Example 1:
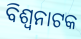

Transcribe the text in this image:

ବିଶ୍ୱନାଟକ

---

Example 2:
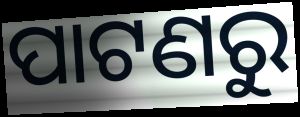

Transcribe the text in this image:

ପାଟଣରୁ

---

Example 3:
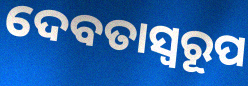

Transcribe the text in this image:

ଦେବତାସ୍ୱରୂପ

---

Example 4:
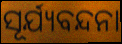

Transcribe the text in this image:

ସୂର୍ଯ୍ୟବନ୍ଦନା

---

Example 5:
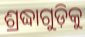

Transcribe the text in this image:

ଶ୍ରଦ୍ଧାଗୁଡ଼ିକୁ